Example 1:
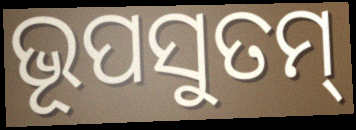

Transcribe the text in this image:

ଭୂପସୁତମ୍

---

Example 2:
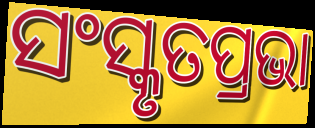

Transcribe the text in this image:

ସଂସ୍କୃତପ୍ରଭା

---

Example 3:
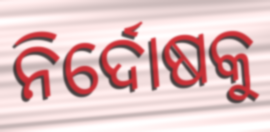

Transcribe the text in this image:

ନିର୍ଦୋଷକୁ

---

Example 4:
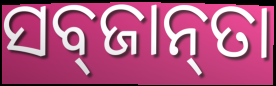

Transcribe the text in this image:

ସବ୍‌ଜାନ୍‌ତା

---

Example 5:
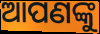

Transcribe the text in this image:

ଆପଣଙ୍କୁ